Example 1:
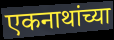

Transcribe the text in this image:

एकनाथांच्या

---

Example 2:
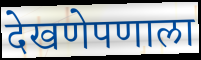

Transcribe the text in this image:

देखणेपणाला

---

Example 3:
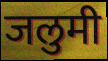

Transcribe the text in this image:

जलुमी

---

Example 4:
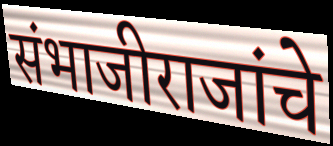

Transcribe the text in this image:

संभाजीराजांचे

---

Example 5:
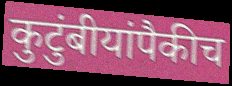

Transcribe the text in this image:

कुटुंबीयांपैकीच